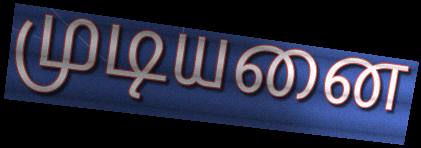
முடியனை